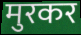
मुरकर